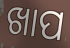
ଖାପ